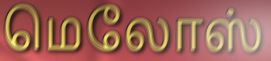
மெலோஸ்